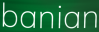
banian